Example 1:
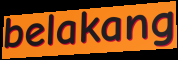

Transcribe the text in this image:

belakang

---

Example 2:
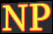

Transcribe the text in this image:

NP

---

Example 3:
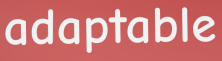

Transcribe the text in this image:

adaptable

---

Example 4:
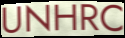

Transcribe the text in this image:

UNHRC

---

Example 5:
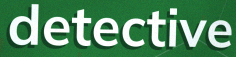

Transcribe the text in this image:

detective